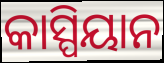
କାସ୍ପିୟାନ